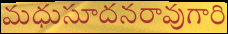
మధుసూదనరావుగారి